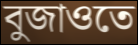
বুজাওতে